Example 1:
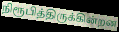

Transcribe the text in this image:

நிரூபித்திருக்கின்றன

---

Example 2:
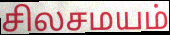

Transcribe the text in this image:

சிலசமயம்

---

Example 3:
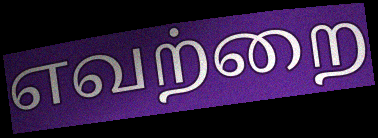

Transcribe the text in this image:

எவற்றை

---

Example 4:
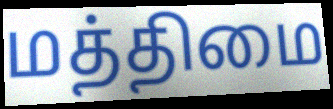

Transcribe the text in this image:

மத்திமை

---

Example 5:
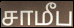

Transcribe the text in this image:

சாமீப